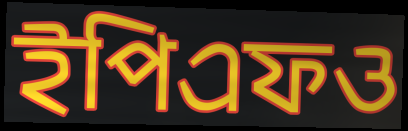
ইপিএফও